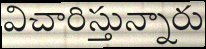
విచారిస్తున్నారు